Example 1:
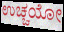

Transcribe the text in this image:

ಉಚ್ಚಯೋ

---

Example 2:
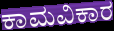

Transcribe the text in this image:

ಕಾಮವಿಕಾರ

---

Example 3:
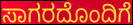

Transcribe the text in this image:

ಸಾಗರದೊಂದಿಗೆ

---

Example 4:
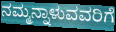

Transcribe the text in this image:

ನಮ್ಮನ್ನಾಳುವವರಿಗೆ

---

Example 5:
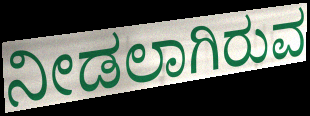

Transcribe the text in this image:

ನೀಡಲಾಗಿರುವ